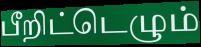
பீறிட்டெழும்